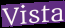
Vista